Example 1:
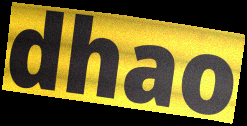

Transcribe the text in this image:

dhao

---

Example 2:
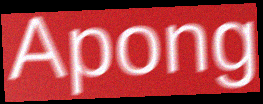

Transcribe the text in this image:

Apong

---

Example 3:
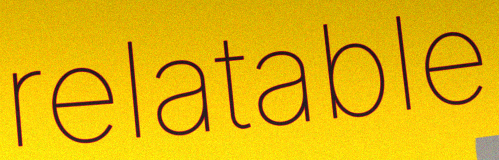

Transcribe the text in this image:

relatable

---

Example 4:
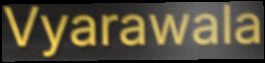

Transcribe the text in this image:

Vyarawala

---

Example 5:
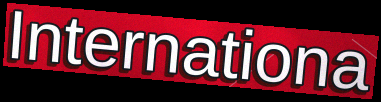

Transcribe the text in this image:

Internationa